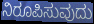
ನಿರೂಪಿಸುವುದು